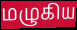
மழுகிய